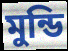
মুন্ডি